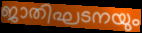
ജാതിഘടനയും